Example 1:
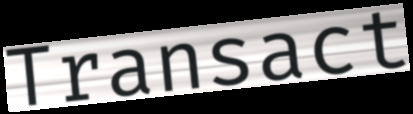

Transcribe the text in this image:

Transact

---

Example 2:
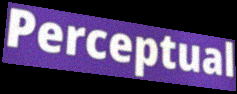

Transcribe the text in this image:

Perceptual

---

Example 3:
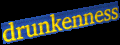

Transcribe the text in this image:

drunkenness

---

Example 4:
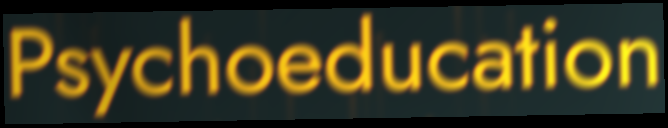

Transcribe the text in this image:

Psychoeducation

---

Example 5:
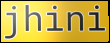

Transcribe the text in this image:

jhini